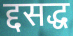
द्दसद्ध